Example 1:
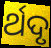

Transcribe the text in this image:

ର୍ଥଦୃ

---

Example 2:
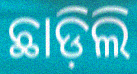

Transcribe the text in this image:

ଛାଡ଼ିଲି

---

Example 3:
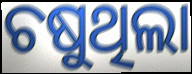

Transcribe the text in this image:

ଚଷୁଥିଲା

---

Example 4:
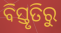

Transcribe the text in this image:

ବିସ୍ତୃତିରୁ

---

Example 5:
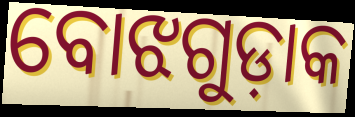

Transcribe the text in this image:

ବୋଝଗୁଡ଼ାକ